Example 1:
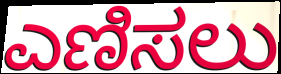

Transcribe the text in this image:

ಎಣಿಸಲು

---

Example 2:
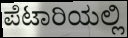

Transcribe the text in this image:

ಪೆಟಾರಿಯಲ್ಲಿ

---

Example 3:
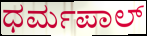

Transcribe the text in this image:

ಧರ್ಮಪಾಲ್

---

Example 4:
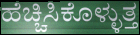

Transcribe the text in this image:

ಹೆಚ್ಚಿಸಿಕೊಳ್ಳುತ್ತ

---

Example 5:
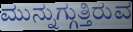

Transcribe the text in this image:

ಮುನ್ನುಗ್ಗುತ್ತಿರುವ